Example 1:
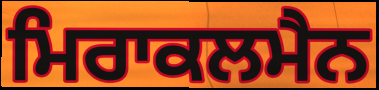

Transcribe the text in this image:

ਮਿਰਾਕਲਮੈਨ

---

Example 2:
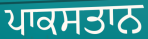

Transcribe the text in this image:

ਪਾਕਸਤਾਨ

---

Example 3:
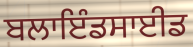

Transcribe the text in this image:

ਬਲਾਇੰਡਸਾਈਡ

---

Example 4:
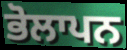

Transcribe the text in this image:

ਭੋਲਾਪਨ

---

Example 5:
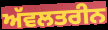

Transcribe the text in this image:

ਅੱਵਲਤਰੀਨ